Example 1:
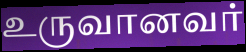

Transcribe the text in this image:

உருவானவர்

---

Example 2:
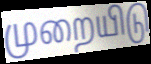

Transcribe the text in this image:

முறையிடு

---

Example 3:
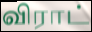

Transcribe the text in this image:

விராட்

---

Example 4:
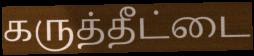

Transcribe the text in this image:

கருத்தீட்டை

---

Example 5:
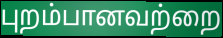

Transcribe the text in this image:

புறம்பானவற்றை